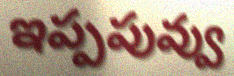
ఇప్పపువ్వు